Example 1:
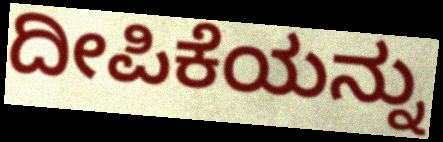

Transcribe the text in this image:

ದೀಪಿಕೆಯನ್ನು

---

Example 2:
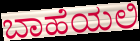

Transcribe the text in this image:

ಬಾಹೆಯಲಿ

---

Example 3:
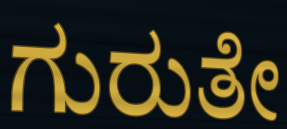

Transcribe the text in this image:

ಗುರುತೇ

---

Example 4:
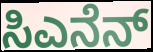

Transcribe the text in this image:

ಸಿಎನೆನ್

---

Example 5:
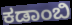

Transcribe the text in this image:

ಕಡಾಂಬಿ